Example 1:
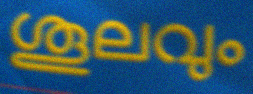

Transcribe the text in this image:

ശൂലവും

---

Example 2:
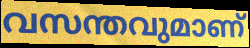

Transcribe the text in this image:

വസന്തവുമാണ്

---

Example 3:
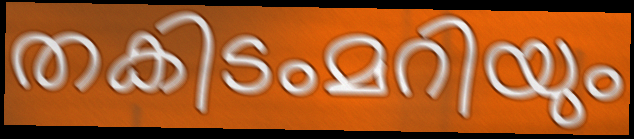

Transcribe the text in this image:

തകിടംമറിയും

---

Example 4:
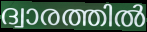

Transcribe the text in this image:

ദ്വാരത്തിൽ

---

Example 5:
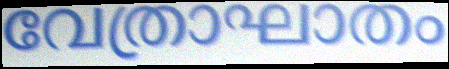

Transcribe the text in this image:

വേത്രാഘാതം